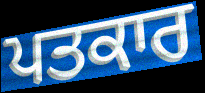
ਪਤਕਾਰ